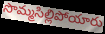
సొమ్మసిల్లిపోయారు